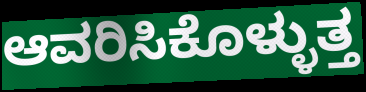
ಆವರಿಸಿಕೊಳ್ಳುತ್ತ